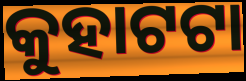
କୁହାଟଟା